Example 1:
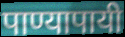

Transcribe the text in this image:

पाण्यापायी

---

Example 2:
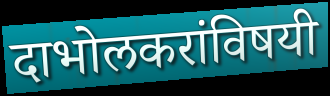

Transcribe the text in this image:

दाभोलकरांविषयी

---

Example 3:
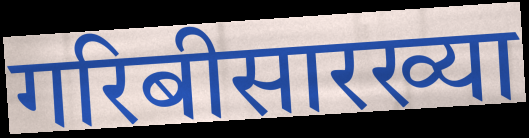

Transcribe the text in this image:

गरिबीसारख्या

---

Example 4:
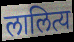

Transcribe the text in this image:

लालित्य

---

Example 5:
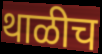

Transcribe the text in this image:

थाळीच